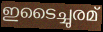
ഇടൈച്ചുരമ്